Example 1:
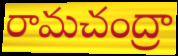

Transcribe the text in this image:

రామచంద్రా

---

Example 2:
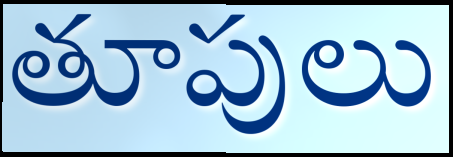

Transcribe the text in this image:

తూపులు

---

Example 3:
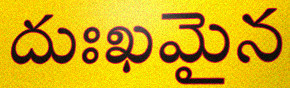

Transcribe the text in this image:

దుఃఖమైన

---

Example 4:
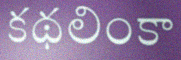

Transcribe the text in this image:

కథలింకా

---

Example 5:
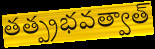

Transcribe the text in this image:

తత్ప్రభవత్వాత్